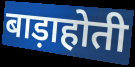
बाड़ाहोती